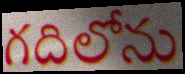
గదిలోను